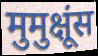
मुमुक्षूंस